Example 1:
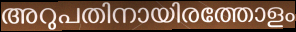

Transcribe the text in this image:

അറുപതിനായിരത്തോളം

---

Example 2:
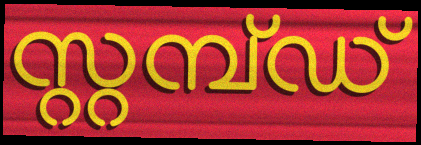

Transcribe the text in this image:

സ്റ്റമ്പ്ഡ്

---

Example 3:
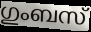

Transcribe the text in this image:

ഗുംബസ്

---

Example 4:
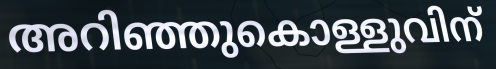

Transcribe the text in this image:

അറിഞ്ഞുകൊള്ളുവിന്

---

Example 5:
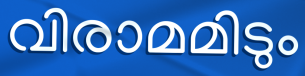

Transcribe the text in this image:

വിരാമമിടും